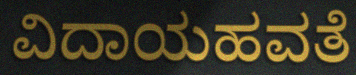
ವಿದಾಯಹವತೆ